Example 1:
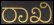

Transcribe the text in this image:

ರಾಖಿ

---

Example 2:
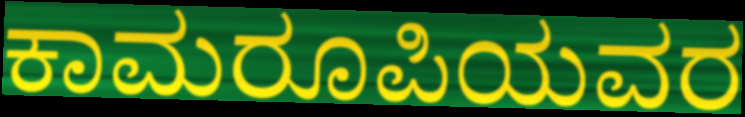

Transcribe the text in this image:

ಕಾಮರೂಪಿಯವರ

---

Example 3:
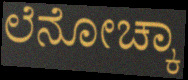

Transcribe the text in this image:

ಲೆನೋಚ್ಕಾ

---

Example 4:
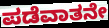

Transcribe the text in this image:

ಪಡೆವಾತನೇ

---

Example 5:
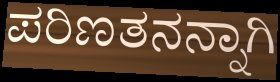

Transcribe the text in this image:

ಪರಿಣತನನ್ನಾಗಿ